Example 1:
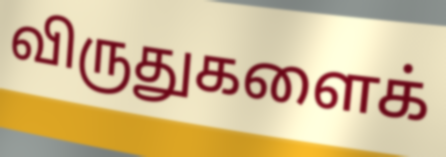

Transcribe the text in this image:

விருதுகளைக்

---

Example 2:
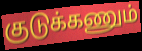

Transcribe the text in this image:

குடுக்கணும்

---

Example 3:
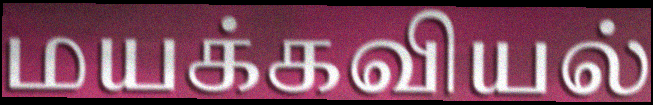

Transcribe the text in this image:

மயக்கவியல்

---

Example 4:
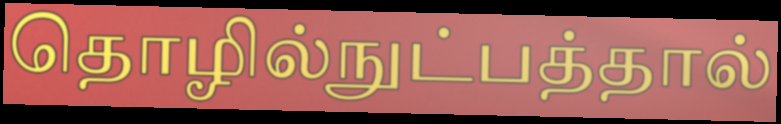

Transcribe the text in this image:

தொழில்நுட்பத்தால்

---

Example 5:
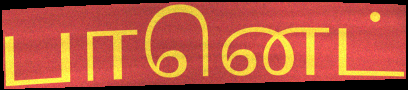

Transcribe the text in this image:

பானெட்